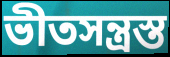
ভীতসন্ত্রস্ত